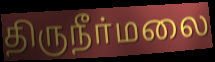
திருநீர்மலை